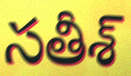
సతీశ్